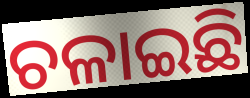
ଚଳାଇଛି